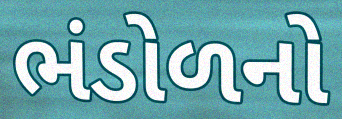
ભંડોળનો